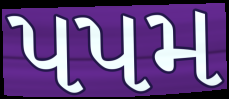
પપમ